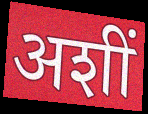
अशीं